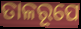
ତାଳରୂପେ